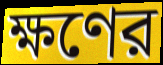
ক্ষণের